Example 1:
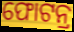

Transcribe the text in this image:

ଫୋଟନ୍ର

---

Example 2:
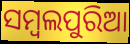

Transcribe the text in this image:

ସମ୍ୱଲପୁରିଆ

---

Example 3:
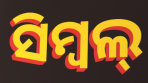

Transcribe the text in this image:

ସିମ୍ବଲ୍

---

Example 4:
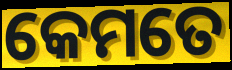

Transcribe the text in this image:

କେମତେ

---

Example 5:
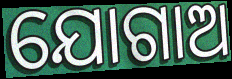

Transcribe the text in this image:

ଯୋଗାଅ